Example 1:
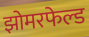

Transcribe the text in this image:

झोमरफेल्ड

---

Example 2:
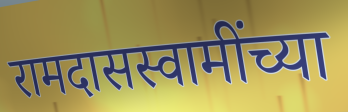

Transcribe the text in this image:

रामदासस्वामींच्या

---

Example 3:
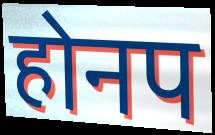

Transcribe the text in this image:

होनप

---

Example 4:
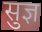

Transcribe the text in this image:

सुज्ञ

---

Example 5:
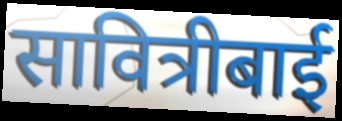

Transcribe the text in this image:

सावित्रीबाई